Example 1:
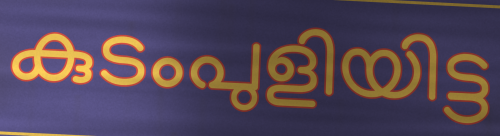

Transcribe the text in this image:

കുടംപുളിയിട്ട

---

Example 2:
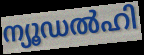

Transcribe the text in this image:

ന്യൂഡൽഹി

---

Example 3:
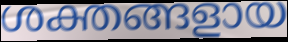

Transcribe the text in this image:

ശക്തങ്ങളായ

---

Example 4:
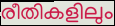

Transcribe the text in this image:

രീതികളിലും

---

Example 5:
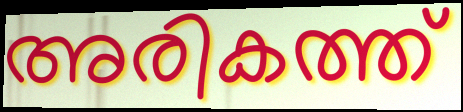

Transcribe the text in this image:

അരികത്ത്